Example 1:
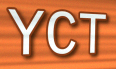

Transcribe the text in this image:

YCT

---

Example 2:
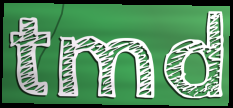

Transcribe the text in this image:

tmd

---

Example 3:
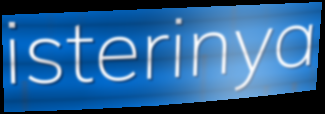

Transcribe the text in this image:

isterinya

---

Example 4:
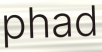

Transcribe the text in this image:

phad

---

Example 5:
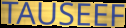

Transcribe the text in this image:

TAUSEEF